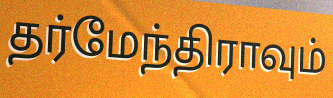
தர்மேந்திராவும்